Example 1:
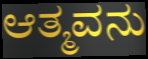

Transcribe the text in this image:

ಆತ್ಮವನು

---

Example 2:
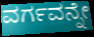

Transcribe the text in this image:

ವರ್ಗವನ್ನೇ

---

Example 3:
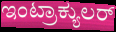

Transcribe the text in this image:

ಇಂಟ್ರಾಕ್ಯುಲರ್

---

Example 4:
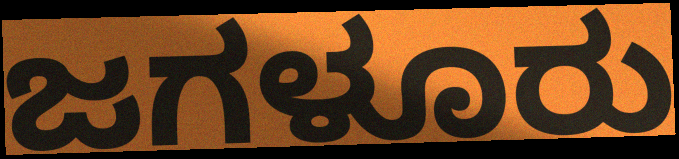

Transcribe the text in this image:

ಜಗಳೂರು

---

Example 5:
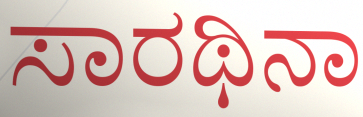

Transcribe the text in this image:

ಸಾರಥಿನಾ